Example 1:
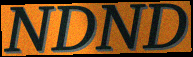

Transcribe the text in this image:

NDND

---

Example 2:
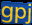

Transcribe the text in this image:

gpj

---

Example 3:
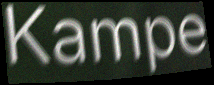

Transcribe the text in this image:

Kampe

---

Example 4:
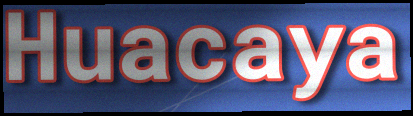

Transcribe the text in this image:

Huacaya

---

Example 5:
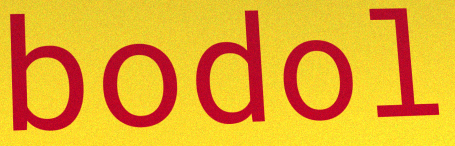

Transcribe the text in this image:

bodol